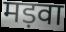
मड़वा